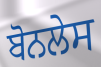
ਬੋਨਲੇਸ